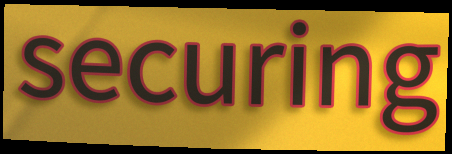
securing